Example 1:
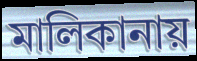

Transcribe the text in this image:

মালিকানায়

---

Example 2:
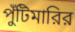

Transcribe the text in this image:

পুঁটিমারির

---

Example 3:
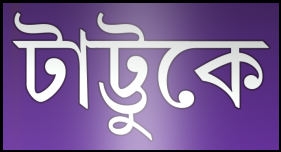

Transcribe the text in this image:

টাট্টুকে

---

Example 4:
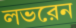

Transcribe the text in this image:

লভরেন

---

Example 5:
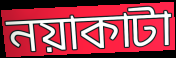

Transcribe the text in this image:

নয়াকাটা